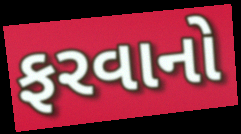
ફરવાનો